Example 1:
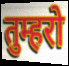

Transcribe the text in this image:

तुम्हरो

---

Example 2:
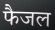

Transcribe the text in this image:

फैजल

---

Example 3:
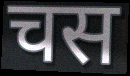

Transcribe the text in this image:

चस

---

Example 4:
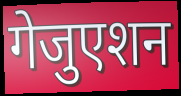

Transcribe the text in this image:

गेजुएशन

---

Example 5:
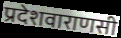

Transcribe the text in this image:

प्रदेशवाराणसी